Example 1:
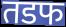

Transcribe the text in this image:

तडफ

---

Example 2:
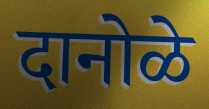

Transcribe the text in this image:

दानोळे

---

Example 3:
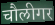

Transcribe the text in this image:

चौलीगर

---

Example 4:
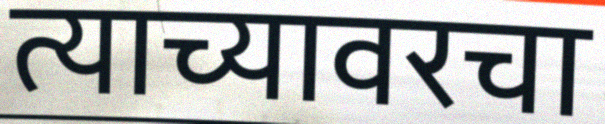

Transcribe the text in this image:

त्याच्यावरचा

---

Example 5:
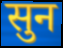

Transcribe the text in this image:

सुन